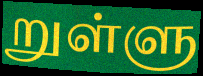
றுள்ளு